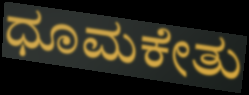
ಧೂಮಕೇತು